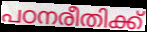
പഠനരീതിക്ക്